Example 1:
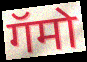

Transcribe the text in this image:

गॅमो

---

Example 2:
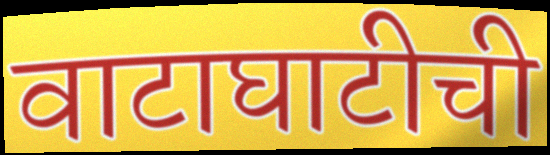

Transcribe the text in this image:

वाटाघाटीची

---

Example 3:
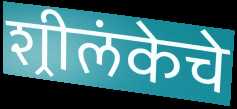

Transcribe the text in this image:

श्रीलंकेचे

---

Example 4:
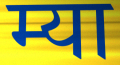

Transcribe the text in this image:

म्या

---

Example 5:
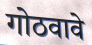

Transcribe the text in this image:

गोठवावे